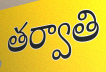
తర్వాతి